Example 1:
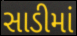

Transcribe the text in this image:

સાડીમાં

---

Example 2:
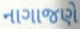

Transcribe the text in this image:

નાગાજણે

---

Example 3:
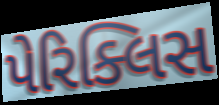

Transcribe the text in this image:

પેરિક્લિસ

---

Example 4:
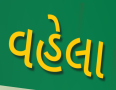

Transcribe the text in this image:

વહેલા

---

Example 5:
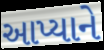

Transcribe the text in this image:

આપ્યાને